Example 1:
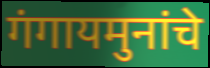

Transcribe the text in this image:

गंगायमुनांचे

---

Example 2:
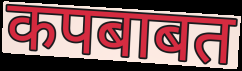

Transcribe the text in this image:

कपबाबत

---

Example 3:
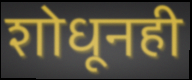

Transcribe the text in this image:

शोधूनही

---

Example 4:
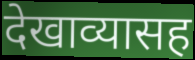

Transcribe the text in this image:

देखाव्यासह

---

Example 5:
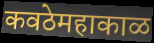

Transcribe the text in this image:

कवठेमहाकाळ